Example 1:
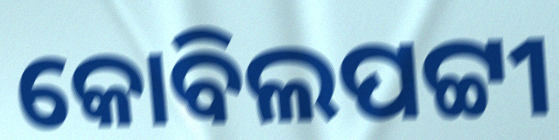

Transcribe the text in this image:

କୋବିଲପଟ୍ଟୀ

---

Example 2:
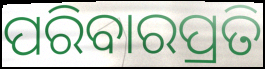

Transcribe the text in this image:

ପରିବାରପ୍ରତି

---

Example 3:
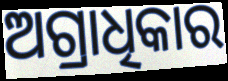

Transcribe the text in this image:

ଅଗ୍ରାଧିକାର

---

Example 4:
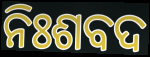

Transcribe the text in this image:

ନିଃଶବଦ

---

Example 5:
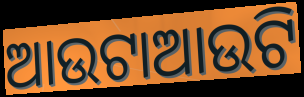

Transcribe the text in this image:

ଆଉଟାଆଉଟି